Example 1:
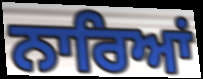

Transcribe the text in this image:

ਨਾਰਿਆਂ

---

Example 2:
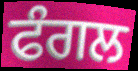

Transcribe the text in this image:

ਫੰਗਲ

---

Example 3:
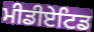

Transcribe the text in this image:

ਮੀਡੀਏਟਿਡ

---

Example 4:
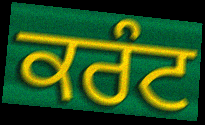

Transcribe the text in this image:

ਕਰੰਟ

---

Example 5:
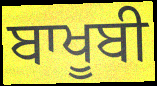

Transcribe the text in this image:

ਬਾਖੂਬੀ